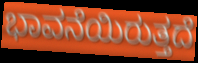
ಭಾವನೆಯಿರುತ್ತದೆ